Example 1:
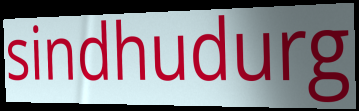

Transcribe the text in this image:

sindhudurg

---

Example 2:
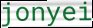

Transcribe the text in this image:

jonyei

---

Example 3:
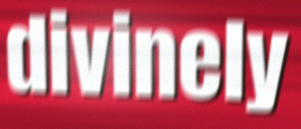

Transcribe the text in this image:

divinely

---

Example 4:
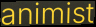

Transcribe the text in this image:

animist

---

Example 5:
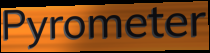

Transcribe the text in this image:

Pyrometer